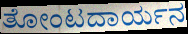
ತೋಂಟದಾರ್ಯನ